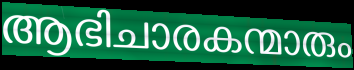
ആഭിചാരകന്മാരും